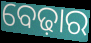
ବେଢ଼ାର